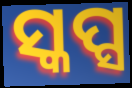
ସ୍କପ୍ସ